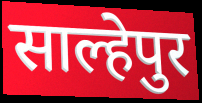
साल्हेपुर